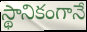
స్థానికంగానే